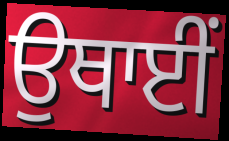
ਉਥਾਈਂ